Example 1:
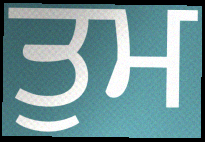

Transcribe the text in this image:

ਤੁਮ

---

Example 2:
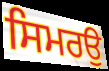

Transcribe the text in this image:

ਸਿਮਰਉ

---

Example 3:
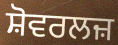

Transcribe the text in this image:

ਸ਼ੋਵਰਲਜ਼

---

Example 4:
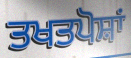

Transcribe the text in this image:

ਤਖਤਪੋਸ਼ਾਂ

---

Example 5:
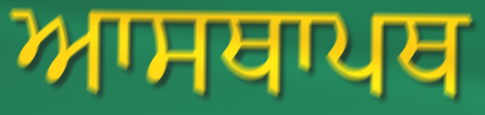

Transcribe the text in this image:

ਆਸਥਾਪਥ